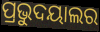
ପ୍ରଭୁଦୟାଲର